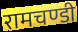
रामचण्डी